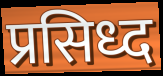
प्रसिध्द